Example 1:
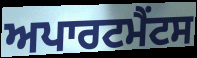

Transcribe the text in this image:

ਅਪਾਰਟਮੈਂਟਸ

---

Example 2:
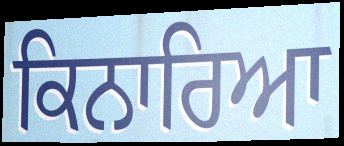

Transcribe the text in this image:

ਕਿਨਾਰਿਆ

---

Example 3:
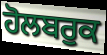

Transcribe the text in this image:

ਹੋਲਬਰੁਕ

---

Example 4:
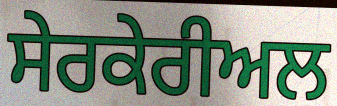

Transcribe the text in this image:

ਸੇਰਕੇਰੀਅਲ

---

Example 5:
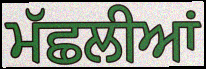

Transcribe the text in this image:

ਮੱਛਲੀਆਂ